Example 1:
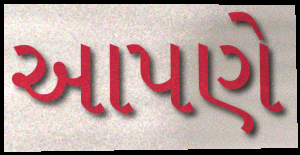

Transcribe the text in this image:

આપણે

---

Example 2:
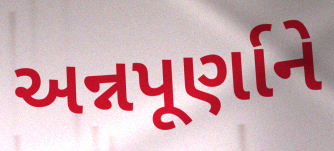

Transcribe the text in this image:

અન્નપૂર્ણાને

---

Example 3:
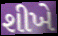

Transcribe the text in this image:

શીખે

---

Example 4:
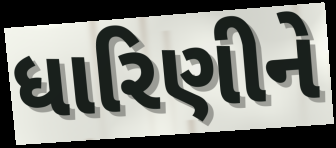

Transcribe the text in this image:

ધારિણીને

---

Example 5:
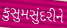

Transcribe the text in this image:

કુસુમસુંદરીને